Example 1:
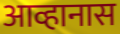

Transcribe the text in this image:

आव्हानास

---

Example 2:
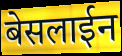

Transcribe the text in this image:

बेसलाईन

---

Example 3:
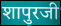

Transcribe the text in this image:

शापुरजी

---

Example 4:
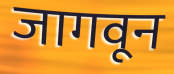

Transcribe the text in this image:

जागवून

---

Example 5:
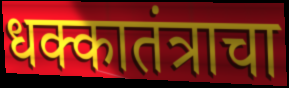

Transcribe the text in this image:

धक्कातंत्राचा